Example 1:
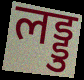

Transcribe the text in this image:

लड्डु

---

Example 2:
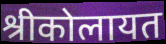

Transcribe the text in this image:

श्रीकोलायत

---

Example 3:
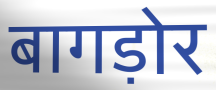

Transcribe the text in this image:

बागड़ोर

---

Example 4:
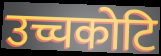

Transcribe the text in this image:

उच्चकोटि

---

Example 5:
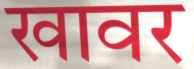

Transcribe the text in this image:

खावर